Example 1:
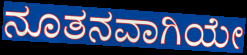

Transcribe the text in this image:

ನೂತನವಾಗಿಯೇ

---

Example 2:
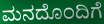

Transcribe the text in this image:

ಮನದೊಂದಿಗೆ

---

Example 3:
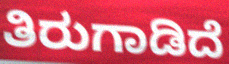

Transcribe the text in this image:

ತಿರುಗಾಡಿದೆ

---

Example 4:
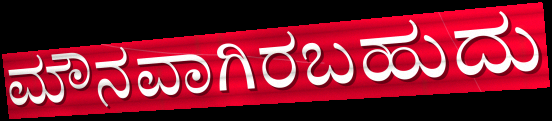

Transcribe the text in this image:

ಮೌನವಾಗಿರಬಹುದು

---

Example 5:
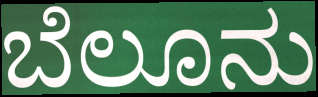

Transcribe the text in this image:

ಬೆಲೂನು